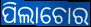
ପିଲାଚୋର